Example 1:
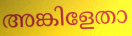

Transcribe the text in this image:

അങ്കിളേതാ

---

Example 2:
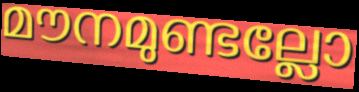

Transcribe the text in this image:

മൗനമുണ്ടല്ലോ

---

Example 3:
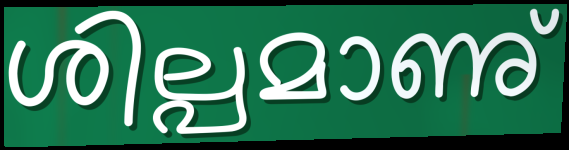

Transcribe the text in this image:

ശില്പമാണു്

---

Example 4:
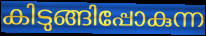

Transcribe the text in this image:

കിടുങ്ങിപ്പോകുന്ന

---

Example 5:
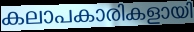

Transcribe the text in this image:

കലാപകാരികളായി